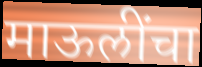
माऊलींचा